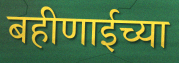
बहीणाईच्या